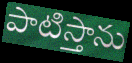
పాటిస్తాను